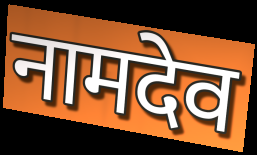
नामदेव